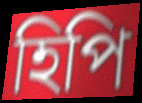
হিপি